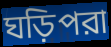
ঘড়িপরা